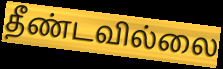
தீண்டவில்லை